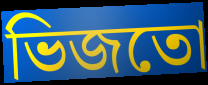
ভিজতো